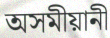
অসমীয়ানী